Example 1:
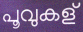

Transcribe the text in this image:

പൂവുകള്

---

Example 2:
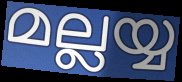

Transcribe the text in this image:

മല്ലയ്യ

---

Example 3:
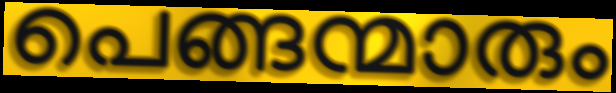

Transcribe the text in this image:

പെങ്ങന്മാരും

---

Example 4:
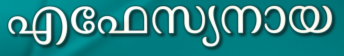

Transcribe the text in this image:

എഫേസ്യനായ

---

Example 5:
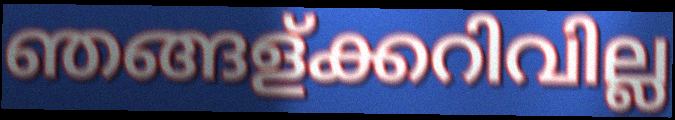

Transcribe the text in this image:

ഞങ്ങള്ക്കറിവില്ല